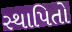
સ્થાપિતો